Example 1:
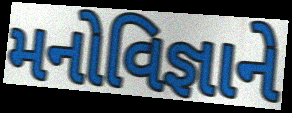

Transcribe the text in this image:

મનોવિજ્ઞાને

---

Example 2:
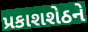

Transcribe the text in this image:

પ્રકાશશેઠને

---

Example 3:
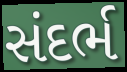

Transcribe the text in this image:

સંદર્ભ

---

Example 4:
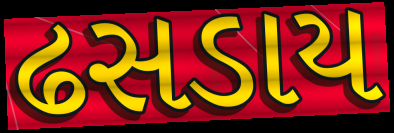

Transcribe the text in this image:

ઢસડાય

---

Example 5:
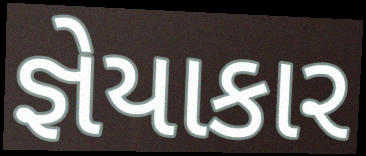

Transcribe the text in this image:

જ્ઞેયાકાર